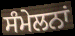
ਸੰਮੇਲਨਾਂ